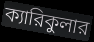
ক্যারিকুলার